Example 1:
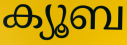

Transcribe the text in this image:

ക്യൂബ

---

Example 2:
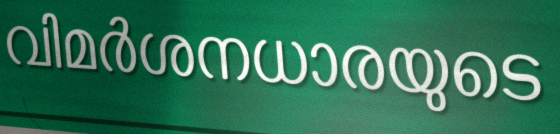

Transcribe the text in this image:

വിമർശനധാരയുടെ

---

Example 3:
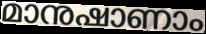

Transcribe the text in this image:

മാനുഷാണാം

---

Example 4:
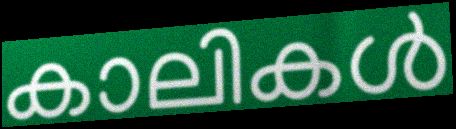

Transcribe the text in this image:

കാലികൾ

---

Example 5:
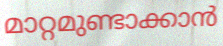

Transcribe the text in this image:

മാറ്റമുണ്ടാക്കാൻ